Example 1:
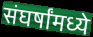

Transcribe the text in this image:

संघर्षांमध्ये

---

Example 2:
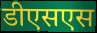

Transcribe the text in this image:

डीएसएस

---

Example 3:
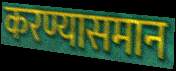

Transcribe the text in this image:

करण्यासमान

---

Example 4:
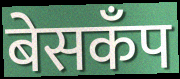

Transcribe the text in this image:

बेसकँप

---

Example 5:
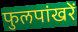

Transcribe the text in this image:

फुलपांखरें